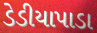
ડેડીયાપાડા